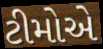
ટીમોએ